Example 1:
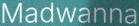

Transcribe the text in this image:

Madwanna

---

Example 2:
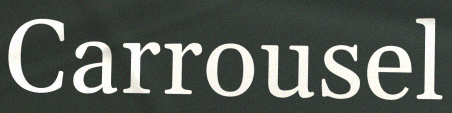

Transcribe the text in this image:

Carrousel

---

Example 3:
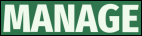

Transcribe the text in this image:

MANAGE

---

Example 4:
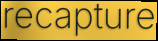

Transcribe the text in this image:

recapture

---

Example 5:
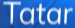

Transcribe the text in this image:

Tatar